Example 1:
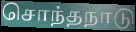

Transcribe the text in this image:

சொந்தநாடு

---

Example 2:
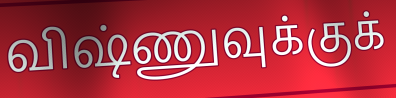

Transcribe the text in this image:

விஷ்ணுவுக்குக்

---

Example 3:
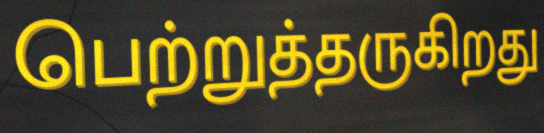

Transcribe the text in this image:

பெற்றுத்தருகிறது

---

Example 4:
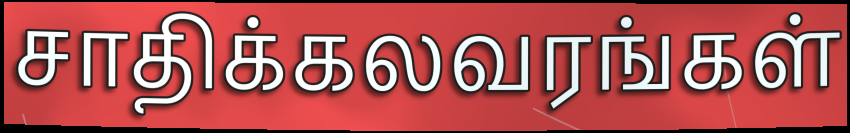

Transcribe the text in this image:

சாதிக்கலவரங்கள்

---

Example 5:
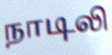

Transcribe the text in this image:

நாடிலி